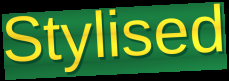
Stylised